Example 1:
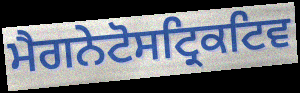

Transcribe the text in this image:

ਮੈਗਨੇਟੋਸਟ੍ਰਿਕਟਿਵ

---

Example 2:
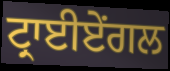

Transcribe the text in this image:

ਟ੍ਰਾਈਏਂਗਲ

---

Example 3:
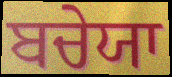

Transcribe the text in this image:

ਬਚੇਯਾ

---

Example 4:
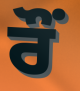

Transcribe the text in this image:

ਰੌਂ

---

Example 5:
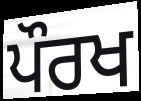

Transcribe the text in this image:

ਪੌਰਖ